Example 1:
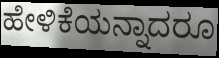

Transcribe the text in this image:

ಹೇಳಿಕೆಯನ್ನಾದರೂ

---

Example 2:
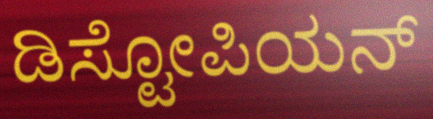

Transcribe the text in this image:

ಡಿಸ್ಟೋಪಿಯನ್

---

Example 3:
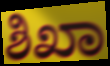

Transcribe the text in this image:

ಶಿಖಾ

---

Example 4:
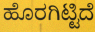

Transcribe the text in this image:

ಹೊರಗಿಟ್ಟಿದೆ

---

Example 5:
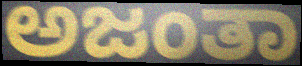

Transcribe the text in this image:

ಅಜಂತಾ